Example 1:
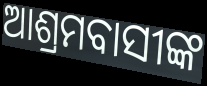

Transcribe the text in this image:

ଆଶ୍ରମବାସୀଙ୍କ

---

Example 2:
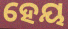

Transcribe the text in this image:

ହେୟ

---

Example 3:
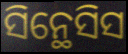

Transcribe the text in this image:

ସିନ୍ଥେସିସ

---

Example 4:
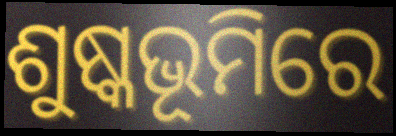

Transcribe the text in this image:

ଶୁଷ୍କଭୂମିରେ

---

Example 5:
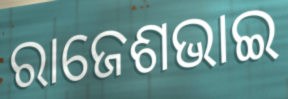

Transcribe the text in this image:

ରାଜେଶଭାଇ